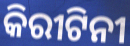
କିରୀଟିନୀ